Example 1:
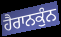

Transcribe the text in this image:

ਹੈਰਾਨਕੁੰਨ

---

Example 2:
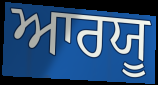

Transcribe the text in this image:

ਆਰਯੂ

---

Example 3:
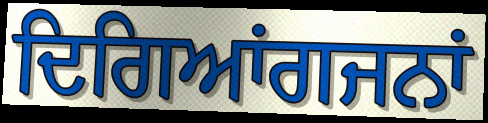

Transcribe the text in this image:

ਦਿਗਿਆਂਗਜਨਾਂ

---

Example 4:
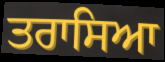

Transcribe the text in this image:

ਤਰਾਸਿਆ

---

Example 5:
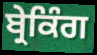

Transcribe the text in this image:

ਬ੍ਰੇਕਿੰਗ